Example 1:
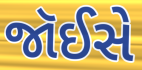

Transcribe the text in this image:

જૉઈસે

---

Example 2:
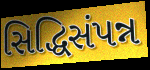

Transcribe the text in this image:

સિદ્ધિસંપન્ન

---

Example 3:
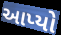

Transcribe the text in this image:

આપ્યો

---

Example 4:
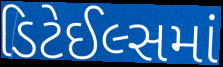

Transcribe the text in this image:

ડિટેઈલ્સમાં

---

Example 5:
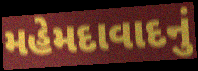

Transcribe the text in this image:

મહેમદાવાદનું